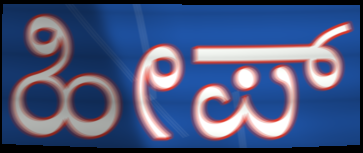
ಹೀಪ್